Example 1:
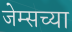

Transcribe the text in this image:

जेम्सच्या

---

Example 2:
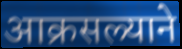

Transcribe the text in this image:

आक्रसल्याने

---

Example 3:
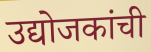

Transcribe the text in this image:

उद्योजकांची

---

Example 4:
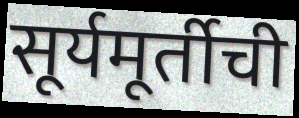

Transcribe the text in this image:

सूर्यमूर्तीची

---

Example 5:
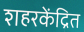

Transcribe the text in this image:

शहरकेंद्रित